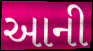
આની